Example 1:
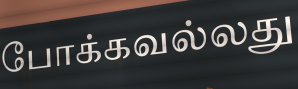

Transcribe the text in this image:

போக்கவல்லது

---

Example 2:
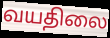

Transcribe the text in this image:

வயதிலை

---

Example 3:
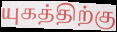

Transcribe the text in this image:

யுகத்திற்கு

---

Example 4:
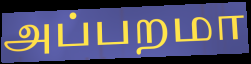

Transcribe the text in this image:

அப்பறமா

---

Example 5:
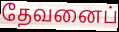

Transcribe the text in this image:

தேவனைப்